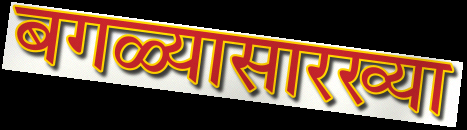
बगळ्यासारख्या